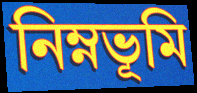
নিম্নভূমি